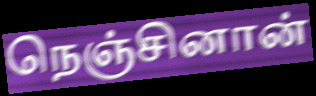
நெஞ்சினான்